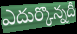
ఎదుర్కొన్నదీ